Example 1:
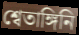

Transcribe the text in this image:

শ্বেতাঙ্গিনি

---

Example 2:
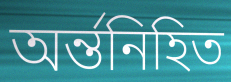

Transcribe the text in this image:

অর্ন্তনিহিত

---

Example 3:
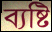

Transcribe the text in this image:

ব্যষ্টি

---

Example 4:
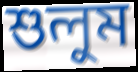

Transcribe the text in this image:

শুলুম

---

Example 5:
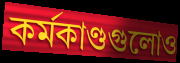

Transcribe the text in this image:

কর্মকাণ্ডগুলোও